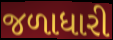
જળાધારી